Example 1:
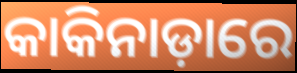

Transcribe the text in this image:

କାକିନାଡ଼ାରେ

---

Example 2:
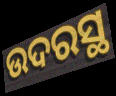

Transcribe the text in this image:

ଉଦରସ୍ଥ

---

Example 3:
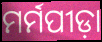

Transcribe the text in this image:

ମର୍ମପୀଡ଼ା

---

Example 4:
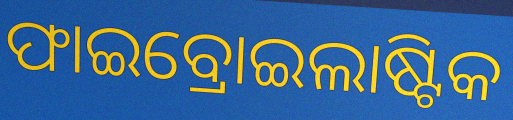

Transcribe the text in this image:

ଫାଇବ୍ରୋଇଲାଷ୍ଟିକ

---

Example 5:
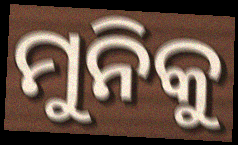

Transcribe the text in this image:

ମୁନିକୁ